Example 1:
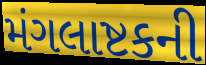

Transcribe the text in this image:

મંગલાષ્ટકની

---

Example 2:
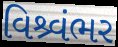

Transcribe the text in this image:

વિશ્ર્વંભર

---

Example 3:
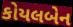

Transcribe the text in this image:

કોયલબેન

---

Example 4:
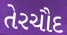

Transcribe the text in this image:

તેરચૌદ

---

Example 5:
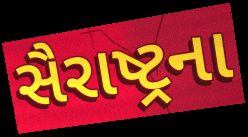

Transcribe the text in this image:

સૈરાષ્ટ્રના